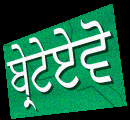
ਬ੍ਰੇਟੇਏਵੋ